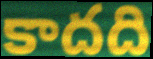
కాదది